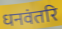
धनवंतरि